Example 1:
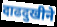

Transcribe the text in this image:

दाढदुखीने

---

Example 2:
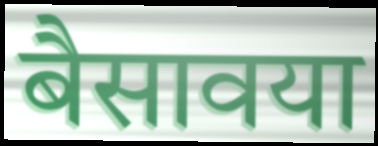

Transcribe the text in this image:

बैसावया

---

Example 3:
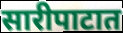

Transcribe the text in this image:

सारीपाटात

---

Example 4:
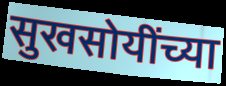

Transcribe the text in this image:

सुखसोयींच्या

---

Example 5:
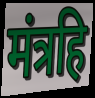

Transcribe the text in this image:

मंत्रहि